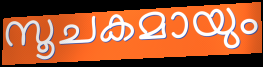
സൂചകമായും